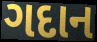
ગદાન